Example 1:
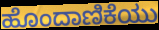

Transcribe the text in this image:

ಹೊಂದಾಣಿಕೆಯು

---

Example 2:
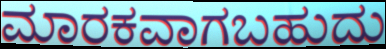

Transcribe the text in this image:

ಮಾರಕವಾಗಬಹುದು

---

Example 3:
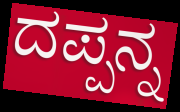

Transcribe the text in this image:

ದಪ್ಪನ್ನ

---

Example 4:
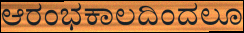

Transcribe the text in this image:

ಆರಂಭಕಾಲದಿಂದಲೂ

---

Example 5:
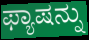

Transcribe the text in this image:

ಫ್ಯಾಷನ್ನು